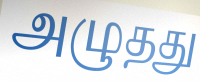
அழுதது